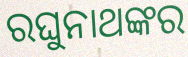
ରଘୁନାଥଙ୍କର